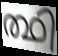
ത്ഥി